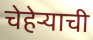
चेहेऱ्याची